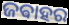
ଜଵାହର